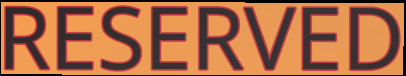
RESERVED